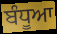
ਬੰਧੂਆ